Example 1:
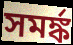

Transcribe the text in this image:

সমর্ঙ্ক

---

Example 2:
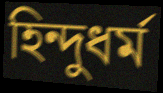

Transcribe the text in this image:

হিন্দুধর্ম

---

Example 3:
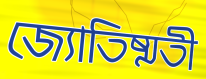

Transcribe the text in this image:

জ্যোতিষ্মতী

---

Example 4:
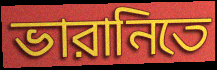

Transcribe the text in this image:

ভারানিতে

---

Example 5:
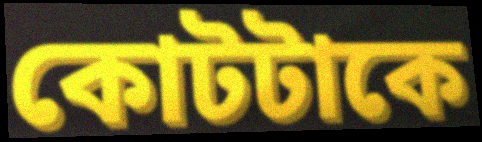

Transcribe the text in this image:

কোটটাকে